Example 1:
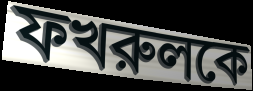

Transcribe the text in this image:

ফখরুলকে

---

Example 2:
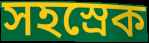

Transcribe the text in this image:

সহস্রেক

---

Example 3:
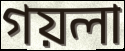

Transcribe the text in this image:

গয়লা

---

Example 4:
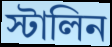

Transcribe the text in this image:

স্টালিন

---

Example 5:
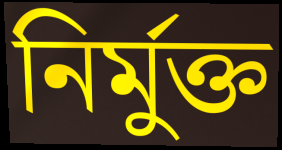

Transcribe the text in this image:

নির্মুক্ত